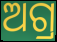
ଅଗ୍ର